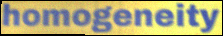
homogeneity